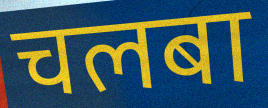
चलबा